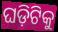
ଘଡ଼ିଟିକୁ